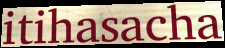
itihasacha